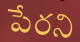
పేరని